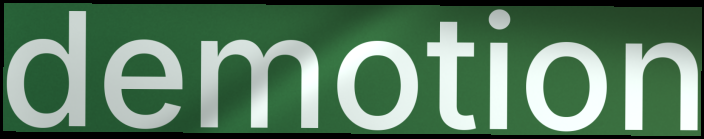
demotion